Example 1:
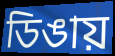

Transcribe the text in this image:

ডিঙায়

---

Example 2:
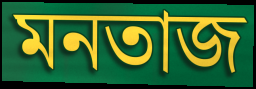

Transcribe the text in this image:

মনতাজ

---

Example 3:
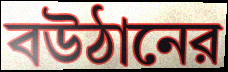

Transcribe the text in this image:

বউঠানের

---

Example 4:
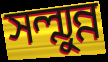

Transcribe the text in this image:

সল্মুন্ন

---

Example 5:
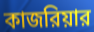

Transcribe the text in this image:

কাজরিয়ার